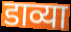
डाव्या